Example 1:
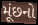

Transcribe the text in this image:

મૂંછનો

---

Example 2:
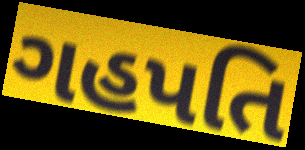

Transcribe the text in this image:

ગહપતિ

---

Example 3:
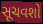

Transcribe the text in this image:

સૂચવશો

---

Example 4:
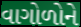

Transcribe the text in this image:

વાગોળોને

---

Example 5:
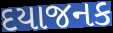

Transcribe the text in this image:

દયાજનક